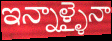
ఇన్నాళ్ళైనా